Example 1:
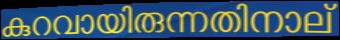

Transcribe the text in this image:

കുറവായിരുന്നതിനാല്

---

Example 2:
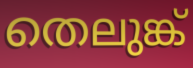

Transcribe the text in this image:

തെലുങ്ക്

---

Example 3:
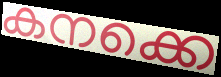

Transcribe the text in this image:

കനക്കെ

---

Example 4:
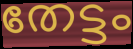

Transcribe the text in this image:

തേട്ടം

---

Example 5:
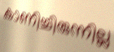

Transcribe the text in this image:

കാണിച്ചിരുന്നില്ല